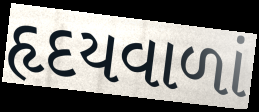
હૃદયવાળાં